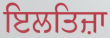
ਇਲਤਿਜ਼ਾ